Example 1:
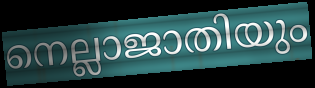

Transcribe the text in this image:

നെല്ലാജാതിയും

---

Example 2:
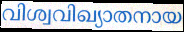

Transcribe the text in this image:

വിശ്വവിഖ്യാതനായ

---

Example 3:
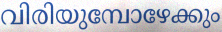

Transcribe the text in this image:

വിരിയുമ്പോഴേക്കും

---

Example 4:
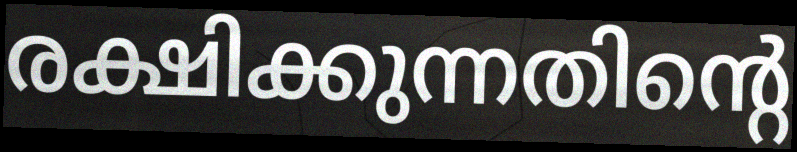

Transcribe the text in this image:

രക്ഷിക്കുന്നതിന്റെ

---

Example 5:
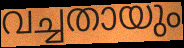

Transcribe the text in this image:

വച്ചതായും